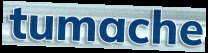
tumache